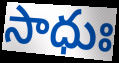
సాధుః